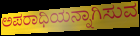
ಅಪರಾಧಿಯನ್ನಾಗಿಸುವ